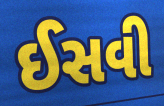
ઈસવી